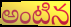
అంటిన